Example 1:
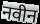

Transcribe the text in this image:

नवीन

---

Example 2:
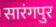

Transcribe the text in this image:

सारंगपुर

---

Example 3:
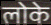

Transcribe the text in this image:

लोके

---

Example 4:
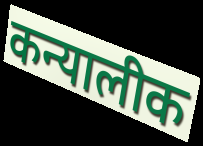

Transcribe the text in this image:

कन्यालीक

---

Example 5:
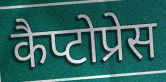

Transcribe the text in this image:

कैप्टोप्रेस